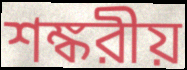
শঙ্করীয়